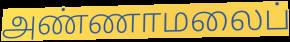
அண்ணாமலைப்